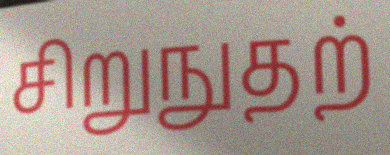
சிறுநுதற்